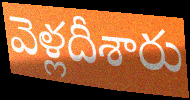
వెళ్లదీశారు